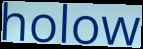
holow